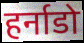
हर्नाडो